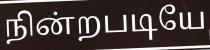
நின்றபடியே